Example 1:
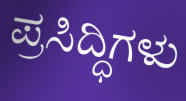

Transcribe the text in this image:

ಪ್ರಸಿದ್ಧಿಗಳು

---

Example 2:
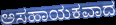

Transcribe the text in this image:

ಅಸಹಾಯಕವಾದ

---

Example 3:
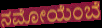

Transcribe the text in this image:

ನಮೋಯೆಂಬೆ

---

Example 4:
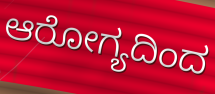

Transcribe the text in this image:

ಆರೋಗ್ಯದಿಂದ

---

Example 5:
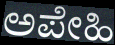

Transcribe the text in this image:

ಅಪೇಹಿ